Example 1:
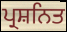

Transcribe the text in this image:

ਪ੍ਰਸ਼ਨਿਤ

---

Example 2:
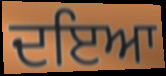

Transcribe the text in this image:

ਦਇਆ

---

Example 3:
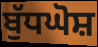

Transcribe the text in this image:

ਬੁੱਧਘੋਸ਼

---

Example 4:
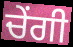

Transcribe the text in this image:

ਚੇਂਗੀ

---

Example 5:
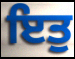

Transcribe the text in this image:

ਇਤੁ